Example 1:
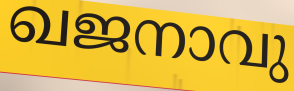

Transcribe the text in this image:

ഖജനാവു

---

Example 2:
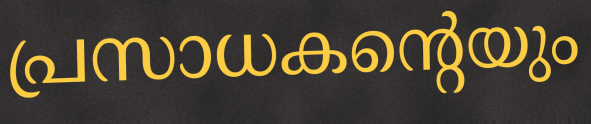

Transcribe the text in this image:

പ്രസാധകന്റെയും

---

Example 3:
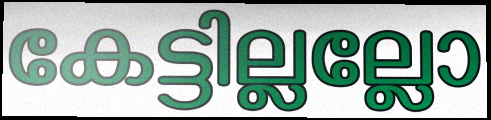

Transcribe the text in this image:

കേട്ടില്ലല്ലോ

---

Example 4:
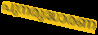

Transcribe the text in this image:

പുനരുദ്ധാരണ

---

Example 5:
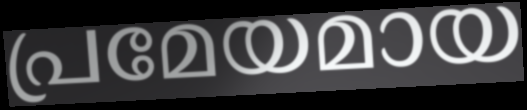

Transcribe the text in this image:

പ്രമേയമായ